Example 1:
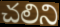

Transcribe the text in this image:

చలిని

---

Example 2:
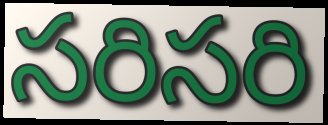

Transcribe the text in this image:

సరిసరి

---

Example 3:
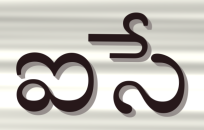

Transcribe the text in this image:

ఐసే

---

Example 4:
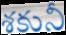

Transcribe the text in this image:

శకునీ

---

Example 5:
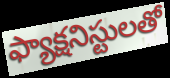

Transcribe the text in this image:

ఫ్యాక్షనిస్టులతో